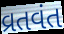
વ્રતવંત